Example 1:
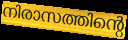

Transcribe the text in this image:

നിരാസത്തിന്റെ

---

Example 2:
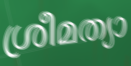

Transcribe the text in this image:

ശ്രീമത്യാ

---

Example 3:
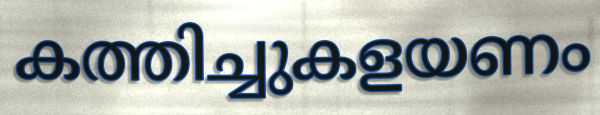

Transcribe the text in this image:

കത്തിച്ചുകളയണം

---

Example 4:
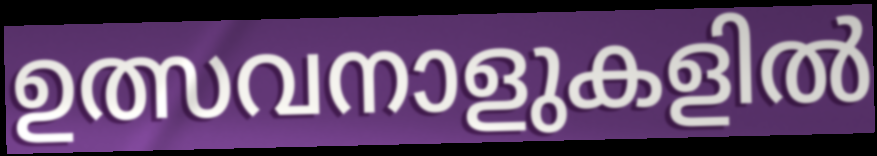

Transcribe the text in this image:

ഉത്സവനാളുകളിൽ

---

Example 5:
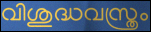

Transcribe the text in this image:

വിശുദ്ധവസ്ത്രം